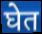
घेत